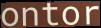
ontor